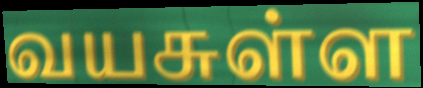
வயசுள்ள